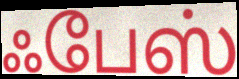
ஃபேஸ்